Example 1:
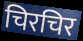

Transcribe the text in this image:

चिरचिर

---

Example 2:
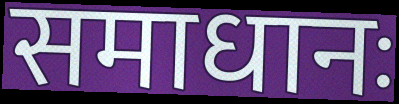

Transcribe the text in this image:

समाधानः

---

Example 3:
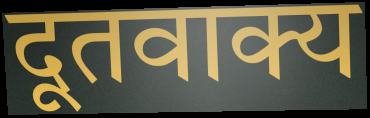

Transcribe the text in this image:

दूतवाक्य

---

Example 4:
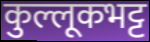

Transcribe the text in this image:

कुल्लूकभट्ट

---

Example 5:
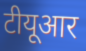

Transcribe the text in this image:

टीयूआर